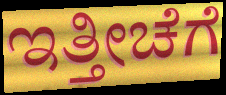
ಇತ್ತೀಚೆಗೆ